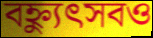
বহ্ন্যুৎসবও